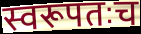
स्वरूपतःच